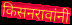
किसनरावांनी